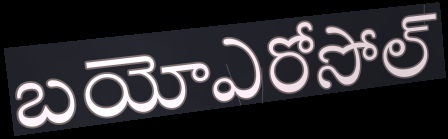
బయోఎరోసోల్